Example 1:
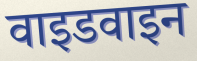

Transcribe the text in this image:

वाइडवाइन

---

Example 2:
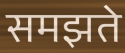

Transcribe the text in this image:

समझते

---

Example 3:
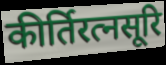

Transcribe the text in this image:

कीर्तिरत्नसूरि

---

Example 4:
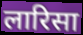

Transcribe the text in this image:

लारिसा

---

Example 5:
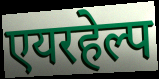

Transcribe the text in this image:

एयरहेल्प